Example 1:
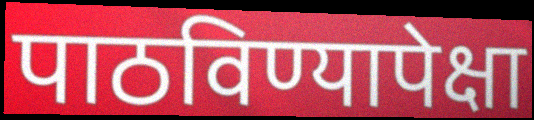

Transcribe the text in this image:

पाठविण्यापेक्षा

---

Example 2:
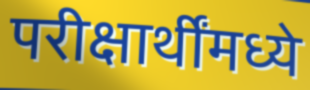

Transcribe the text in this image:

परीक्षार्थींमध्ये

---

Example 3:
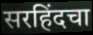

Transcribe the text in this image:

सरहिंदचा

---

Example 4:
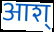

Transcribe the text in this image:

आश्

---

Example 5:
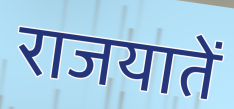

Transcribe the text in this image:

राजयातें